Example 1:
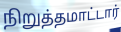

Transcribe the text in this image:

நிறுத்தமாட்டார்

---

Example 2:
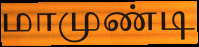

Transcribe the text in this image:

மாமுண்டி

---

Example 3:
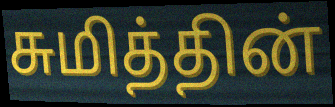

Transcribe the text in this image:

சுமித்தின்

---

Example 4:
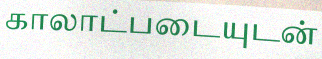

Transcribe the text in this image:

காலாட்படையுடன்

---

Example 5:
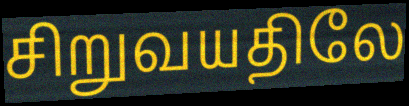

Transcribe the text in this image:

சிறுவயதிலே